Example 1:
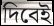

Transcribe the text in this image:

দিবেই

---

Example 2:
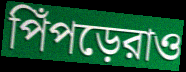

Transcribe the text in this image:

পিঁপড়েরাও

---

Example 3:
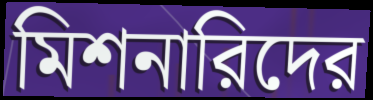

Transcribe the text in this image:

মিশনারিদের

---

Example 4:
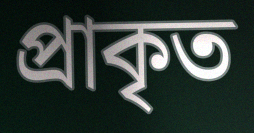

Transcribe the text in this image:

প্রাকৃত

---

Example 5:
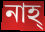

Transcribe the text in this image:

নাহ্